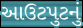
આઉટપુટનું